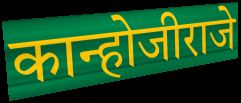
कान्होजीराजे